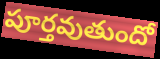
పూర్తవుతుందో